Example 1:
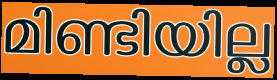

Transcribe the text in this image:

മിണ്ടിയില്ല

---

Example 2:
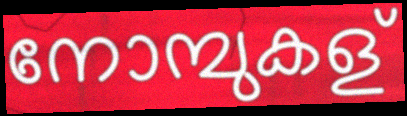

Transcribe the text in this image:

നോമ്പുകള്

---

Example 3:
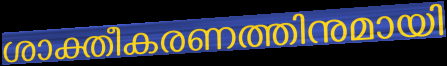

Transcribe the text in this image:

ശാക്തീകരണത്തിനുമായി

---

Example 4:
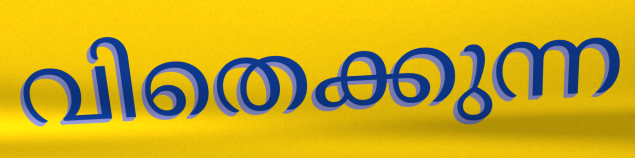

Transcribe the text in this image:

വിതെക്കുന്ന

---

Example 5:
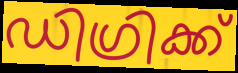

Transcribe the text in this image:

ഡിഗ്രിക്ക്